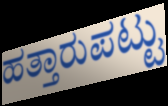
ಹತ್ತಾರುಪಟ್ಟು